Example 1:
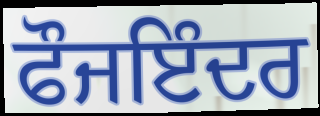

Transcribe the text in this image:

ਫੌਜਇੰਦਰ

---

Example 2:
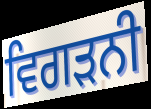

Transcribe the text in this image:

ਵਿਗੜਨੀ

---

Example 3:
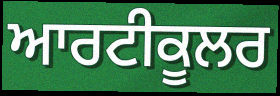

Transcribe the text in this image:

ਆਰਟੀਕੂਲਰ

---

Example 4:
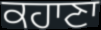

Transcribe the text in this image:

ਕਹਾਣਾ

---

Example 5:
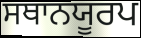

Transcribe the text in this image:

ਸਥਾਨਯੂਰਪ